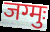
जग्मुः